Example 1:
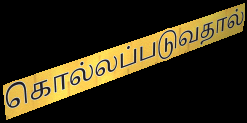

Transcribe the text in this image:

கொல்லப்படுவதால்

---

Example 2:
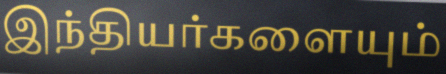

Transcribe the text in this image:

இந்தியர்களையும்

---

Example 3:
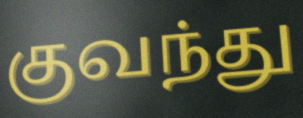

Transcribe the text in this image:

குவந்து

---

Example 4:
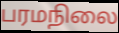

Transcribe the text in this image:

பரமநிலை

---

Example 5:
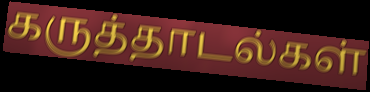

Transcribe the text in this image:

கருத்தாடல்கள்